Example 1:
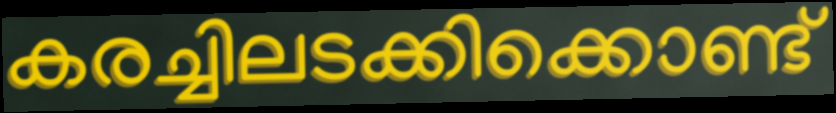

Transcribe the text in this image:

കരച്ചിലടക്കിക്കൊണ്ട്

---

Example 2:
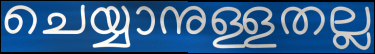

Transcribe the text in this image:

ചെയ്യാനുള്ളതല്ല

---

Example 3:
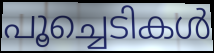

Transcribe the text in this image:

പൂച്ചെടികൾ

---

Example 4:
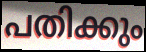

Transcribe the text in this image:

പതിക്കും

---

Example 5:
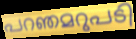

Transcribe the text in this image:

പറഞമറുപടി